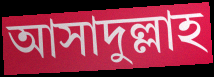
আসাদুল্লাহ